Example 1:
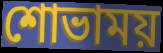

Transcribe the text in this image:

শোভাময়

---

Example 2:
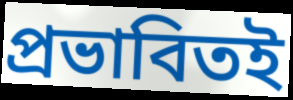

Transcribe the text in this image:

প্রভাবিতই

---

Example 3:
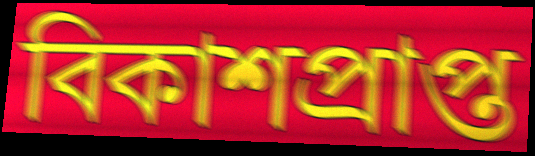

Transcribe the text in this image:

বিকাশপ্রাপ্ত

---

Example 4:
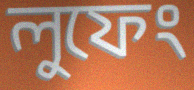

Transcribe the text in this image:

লুফেং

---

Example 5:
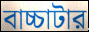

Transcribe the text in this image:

বাচ্চাটার